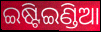
ଇଷ୍ଟିଇଣ୍ଡିଆ